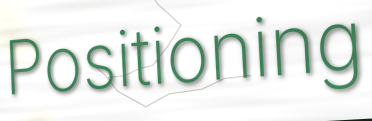
Positioning